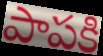
పాపకి